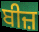
ਬੀਜ਼